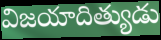
విజయాదిత్యుడు